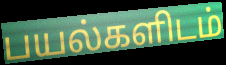
பயல்களிடம்